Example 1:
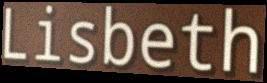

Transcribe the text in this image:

Lisbeth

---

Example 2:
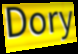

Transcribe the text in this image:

Dory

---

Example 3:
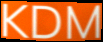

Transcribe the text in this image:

KDM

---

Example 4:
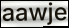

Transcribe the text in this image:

aawje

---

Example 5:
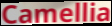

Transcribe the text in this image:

Camellia